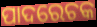
ପାଦରେଚକ